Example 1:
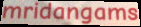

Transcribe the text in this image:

mridangams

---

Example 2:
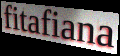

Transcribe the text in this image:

fitafiana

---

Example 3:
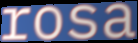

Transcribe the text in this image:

rosa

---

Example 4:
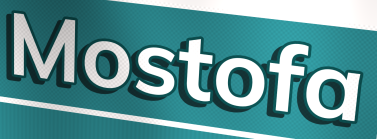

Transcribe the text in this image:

Mostofa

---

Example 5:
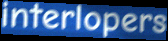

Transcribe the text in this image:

interlopers